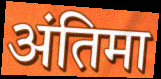
अंतिमा